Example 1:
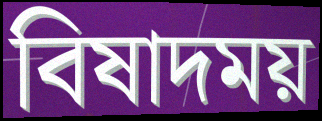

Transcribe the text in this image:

বিষাদময়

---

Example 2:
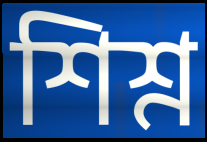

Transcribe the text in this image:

শিশ্ন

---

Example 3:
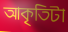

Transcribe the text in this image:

আকৃতিটা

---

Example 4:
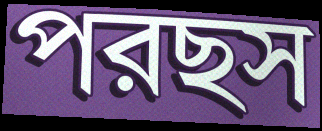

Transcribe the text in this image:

পরছস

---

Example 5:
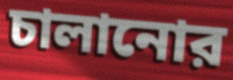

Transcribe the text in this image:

চালানোর